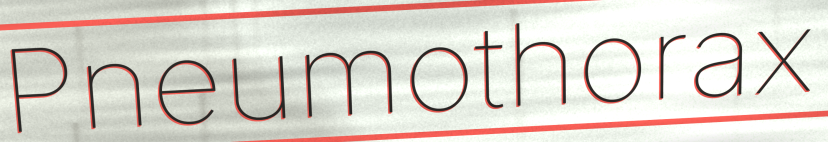
Pneumothorax